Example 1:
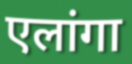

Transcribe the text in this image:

एलांगा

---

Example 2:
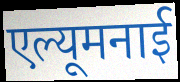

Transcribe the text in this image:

एल्यूमनाई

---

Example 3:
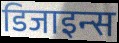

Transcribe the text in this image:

डिजाइन्स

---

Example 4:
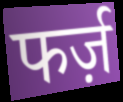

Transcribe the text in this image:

फर्ज़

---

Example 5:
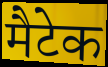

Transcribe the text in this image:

मैटेक